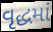
વૃદ્ધમાં